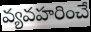
వ్యవహరించే